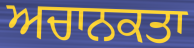
ਅਚਾਨਕਤਾ